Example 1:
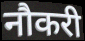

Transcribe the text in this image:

नौकरी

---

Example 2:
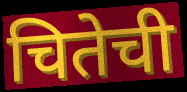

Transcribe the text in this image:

चितेची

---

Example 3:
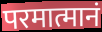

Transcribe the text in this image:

परमात्मानं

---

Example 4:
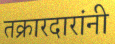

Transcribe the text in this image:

तक्रारदारांनी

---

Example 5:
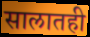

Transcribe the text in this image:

सालातही